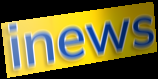
inews